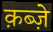
क़ब्ज़े